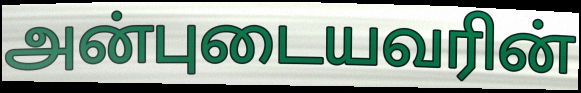
அன்புடையவரின்